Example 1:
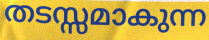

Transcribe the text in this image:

തടസ്സമാകുന്ന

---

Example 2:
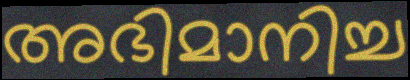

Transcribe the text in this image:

അഭിമാനിച്ച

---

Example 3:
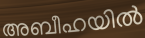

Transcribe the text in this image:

അബീഹയിൽ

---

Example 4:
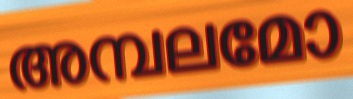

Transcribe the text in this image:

അമ്പലമോ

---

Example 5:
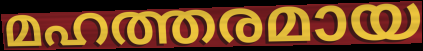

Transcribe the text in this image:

മഹത്തരമായ